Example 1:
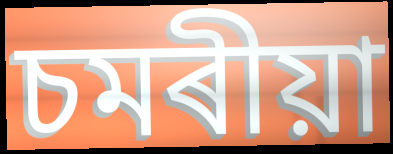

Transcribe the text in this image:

চমৰীয়া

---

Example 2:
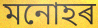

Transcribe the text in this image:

মনোহৰ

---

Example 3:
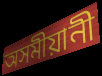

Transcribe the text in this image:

অসমীয়ানী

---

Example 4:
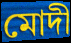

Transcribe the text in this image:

মোদী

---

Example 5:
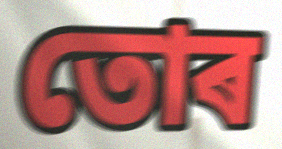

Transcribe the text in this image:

তোৰ